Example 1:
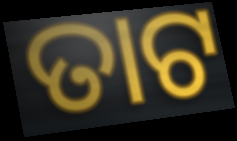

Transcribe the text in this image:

ତାଟ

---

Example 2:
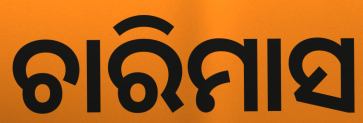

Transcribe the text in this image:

ଚାରିମାସ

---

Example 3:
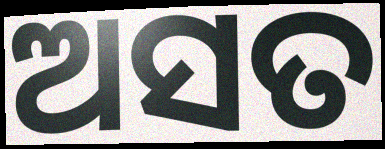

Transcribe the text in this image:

ଅସତ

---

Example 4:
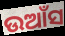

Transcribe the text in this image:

ଉଆଁସ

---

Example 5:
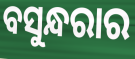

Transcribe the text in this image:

ବସୁନ୍ଧରାର